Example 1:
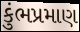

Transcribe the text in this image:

કુંભપ્રમાણ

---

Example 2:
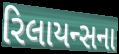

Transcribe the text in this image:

રિલાયન્સના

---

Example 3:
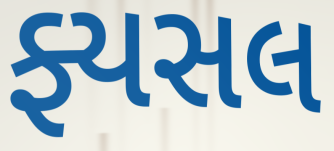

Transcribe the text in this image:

ફ્યસલ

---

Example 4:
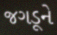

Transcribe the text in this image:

જગડૂને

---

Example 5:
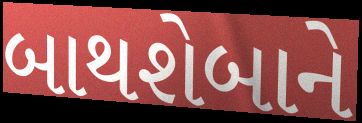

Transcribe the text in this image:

બાથશેબાને